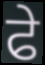
ਫੇ